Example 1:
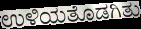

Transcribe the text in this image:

ಉಳಿಯತೊಡಗಿತು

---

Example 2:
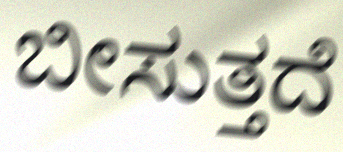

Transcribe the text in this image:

ಬೀಸುತ್ತದೆ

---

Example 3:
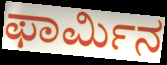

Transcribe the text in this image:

ಫಾರ್ಮಿನ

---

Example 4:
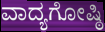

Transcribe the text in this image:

ವಾದ್ಯಗೋಷ್ಠಿ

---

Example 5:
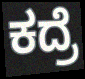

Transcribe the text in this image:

ಕದ್ರೆ